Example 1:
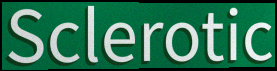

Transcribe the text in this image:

Sclerotic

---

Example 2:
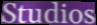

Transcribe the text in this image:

Studios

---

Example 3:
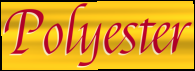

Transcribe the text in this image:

Polyester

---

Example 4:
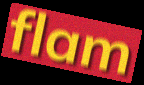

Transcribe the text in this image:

flam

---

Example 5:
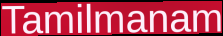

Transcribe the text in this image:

Tamilmanam